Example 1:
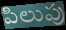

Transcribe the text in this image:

పిలుపు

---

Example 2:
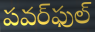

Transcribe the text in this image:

పవర్‌ఫుల్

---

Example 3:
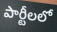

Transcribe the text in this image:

పార్టీలలో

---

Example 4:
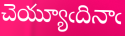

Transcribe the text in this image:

చెయ్యూఁదినాఁ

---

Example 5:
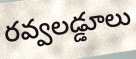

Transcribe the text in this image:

రవ్వలడ్డూలు